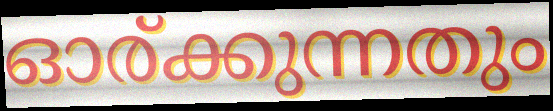
ഓര്ക്കുന്നതും